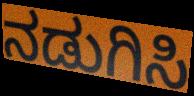
ನಡುಗಿಸಿ